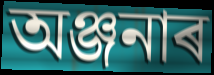
অঞ্জনাৰ